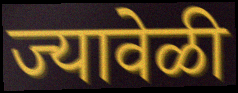
ज्यावेळी